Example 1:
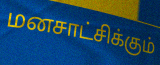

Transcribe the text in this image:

மனசாட்சிக்கும்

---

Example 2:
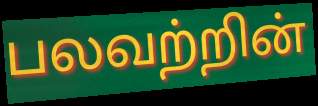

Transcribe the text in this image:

பலவற்றின்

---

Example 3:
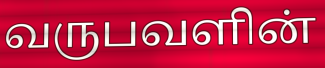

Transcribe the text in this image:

வருபவளின்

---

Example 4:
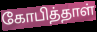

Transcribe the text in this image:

கோபித்தாள்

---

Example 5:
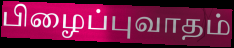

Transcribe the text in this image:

பிழைப்புவாதம்